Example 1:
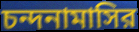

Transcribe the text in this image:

চন্দনামাসির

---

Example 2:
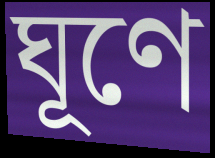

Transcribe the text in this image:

ঘূণে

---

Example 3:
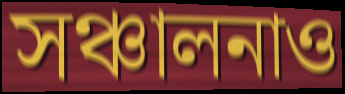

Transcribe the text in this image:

সঞ্চালনাও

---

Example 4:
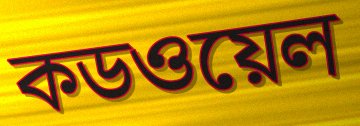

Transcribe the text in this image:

কডওয়েল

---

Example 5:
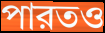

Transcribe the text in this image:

পারতও